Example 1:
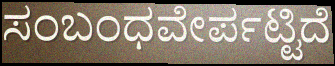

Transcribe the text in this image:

ಸಂಬಂಧವೇರ್ಪಟ್ಟಿದೆ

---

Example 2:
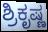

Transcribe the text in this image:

ಶ್ರಿಕೃಷ್ಣ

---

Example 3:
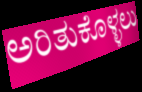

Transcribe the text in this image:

ಅರಿತುಕೊಳ್ಳಲು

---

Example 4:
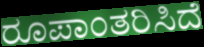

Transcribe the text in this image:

ರೂಪಾಂತರಿಸಿದೆ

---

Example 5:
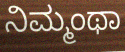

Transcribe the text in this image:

ನಿಮ್ಮಂಥಾ